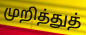
முறித்துத்